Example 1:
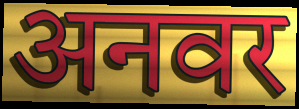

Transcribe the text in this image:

अनवर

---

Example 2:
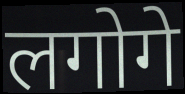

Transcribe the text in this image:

लगोगे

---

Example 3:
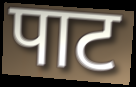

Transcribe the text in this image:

पाट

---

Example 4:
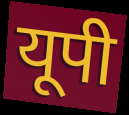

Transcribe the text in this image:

यूपी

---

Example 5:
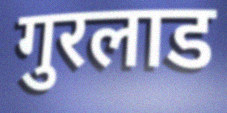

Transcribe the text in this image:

गुरलाड